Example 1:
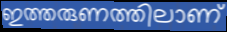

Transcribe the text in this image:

ഇത്തരുണത്തിലാണ്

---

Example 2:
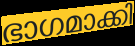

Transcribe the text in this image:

ഭാഗമാക്കി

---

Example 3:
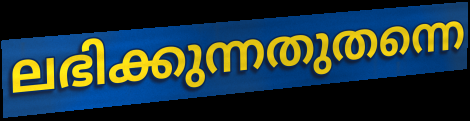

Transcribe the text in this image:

ലഭിക്കുന്നതുതന്നെ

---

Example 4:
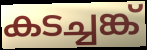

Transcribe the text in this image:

കടച്ചങ്ക്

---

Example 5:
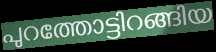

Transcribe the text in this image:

പുറത്തോട്ടിറങ്ങിയ